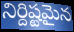
నిర్దిష్టమైన